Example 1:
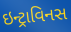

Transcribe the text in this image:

ઇન્ટ્રાવિનસ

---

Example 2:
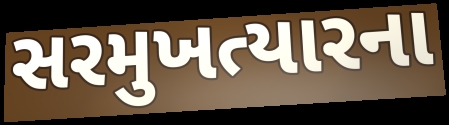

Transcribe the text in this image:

સરમુખત્યારના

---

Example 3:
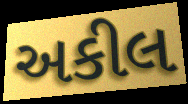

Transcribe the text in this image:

અકીલ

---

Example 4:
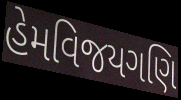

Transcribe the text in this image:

હેમવિજયગણિ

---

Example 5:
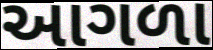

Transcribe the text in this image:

આગળા